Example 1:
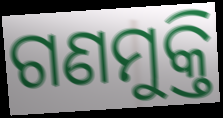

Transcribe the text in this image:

ଗଣମୁକ୍ତି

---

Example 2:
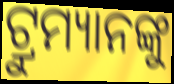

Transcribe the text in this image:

ଟ୍ରୁମ୍ୟାନଙ୍କୁ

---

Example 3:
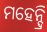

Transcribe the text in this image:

ମହେନ୍ଦ୍ରି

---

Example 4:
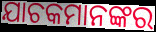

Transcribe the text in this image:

ଯାଚକମାନଙ୍କର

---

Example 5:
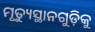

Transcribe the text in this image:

ମୃତ୍ୟୁସ୍ଥାନଗୁଡ଼ିକୁ